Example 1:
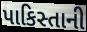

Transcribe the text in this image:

પાકિસ્તાની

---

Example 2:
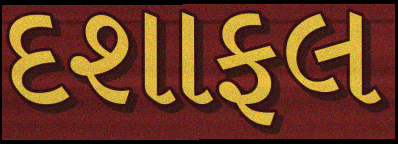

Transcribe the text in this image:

દશાફલ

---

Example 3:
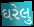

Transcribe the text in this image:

ઘરેલુ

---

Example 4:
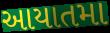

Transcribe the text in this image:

આયાતમા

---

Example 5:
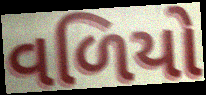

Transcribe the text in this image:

વળિયો